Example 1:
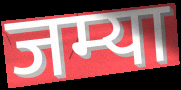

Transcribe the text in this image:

जम्या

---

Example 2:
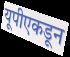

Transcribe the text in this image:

यूपीएकडून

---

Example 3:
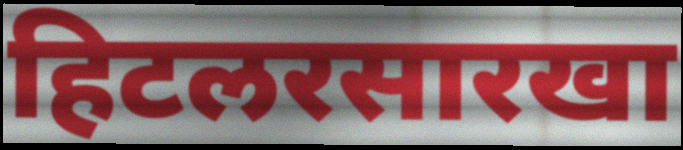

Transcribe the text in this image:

हिटलरसारखा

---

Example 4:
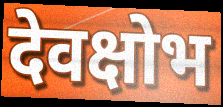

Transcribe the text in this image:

देवक्षोभ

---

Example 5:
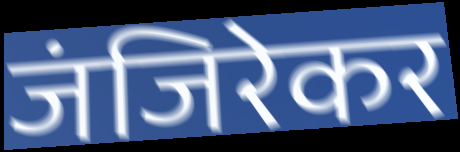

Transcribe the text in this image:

जंजिरेकर